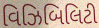
વિઝિબિલિટી